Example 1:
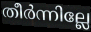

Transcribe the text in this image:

തീർന്നില്ലേ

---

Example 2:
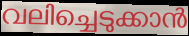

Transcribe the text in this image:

വലിച്ചെടുക്കാൻ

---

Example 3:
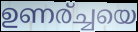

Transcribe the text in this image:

ഉണര്ച്ചയെ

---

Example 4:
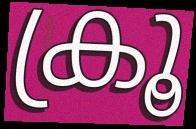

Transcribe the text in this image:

ക്രൂ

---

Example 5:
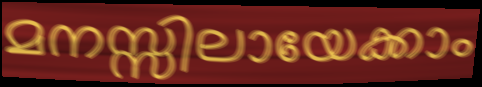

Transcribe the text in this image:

മനസ്സിലായേക്കാം